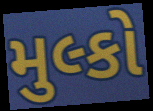
મુલ્કો